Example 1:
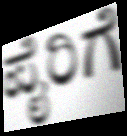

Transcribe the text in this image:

ಪೈರಿಗೆ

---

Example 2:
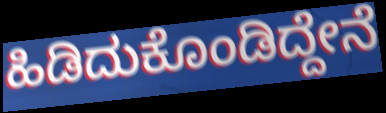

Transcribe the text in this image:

ಹಿಡಿದುಕೊಂಡಿದ್ದೇನೆ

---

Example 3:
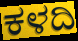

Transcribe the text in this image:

ಕಳದಿ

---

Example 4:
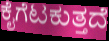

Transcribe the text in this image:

ಕೈಗೆಟಕುತ್ತದೆ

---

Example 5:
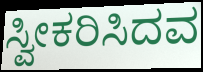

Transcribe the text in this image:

ಸ್ವೀಕರಿಸಿದವ